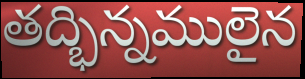
తద్భిన్నములైన